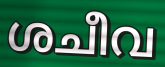
ശചീവ